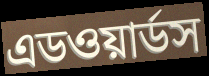
এডওয়ার্ডস